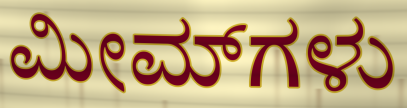
ಮೀಮ್‌ಗಳು